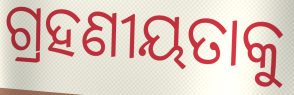
ଗ୍ରହଣୀୟତାକୁ